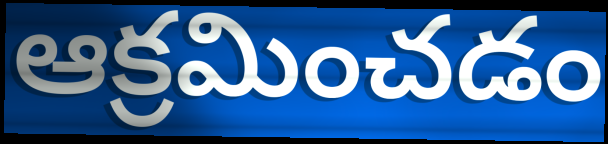
ఆక్రమించడం